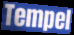
Tempel